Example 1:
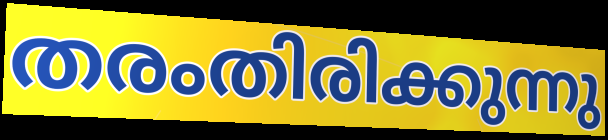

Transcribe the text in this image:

തരംതിരിക്കുന്നു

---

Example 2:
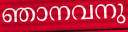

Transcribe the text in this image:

ഞാനവനു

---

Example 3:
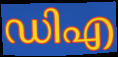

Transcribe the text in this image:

ഡിഎ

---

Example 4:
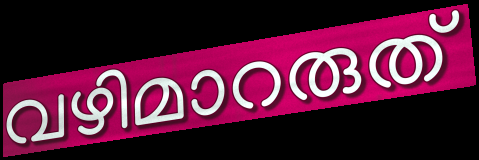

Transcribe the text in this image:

വഴിമാറരുത്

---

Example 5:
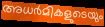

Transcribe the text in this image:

അധർമികളുടെയും